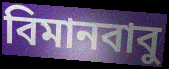
বিমানবাবু